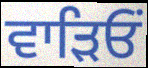
ਵਾੜਿਓਂ